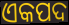
ଏକପଦ